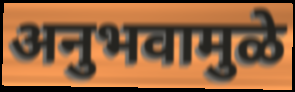
अनुभवामुळे